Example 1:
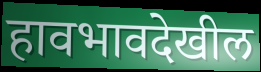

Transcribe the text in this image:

हावभावदेखील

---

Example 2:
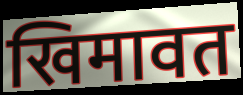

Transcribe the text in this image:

खिमावत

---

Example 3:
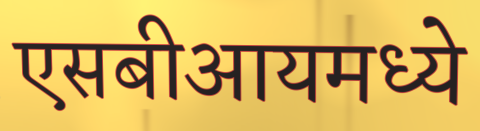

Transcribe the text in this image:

एसबीआयमध्ये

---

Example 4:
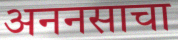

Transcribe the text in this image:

अननसाचा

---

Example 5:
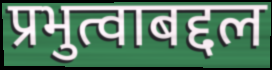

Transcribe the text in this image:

प्रभुत्वाबद्दल